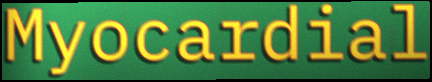
Myocardial